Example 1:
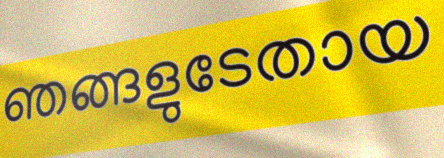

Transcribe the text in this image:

ഞങ്ങളുടേതായ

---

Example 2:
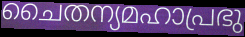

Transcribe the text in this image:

ചൈതന്യമഹാപ്രഭു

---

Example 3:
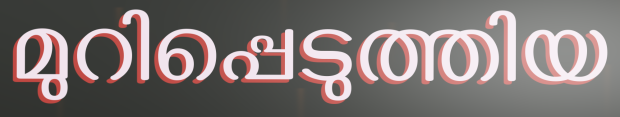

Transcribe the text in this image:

മുറിപ്പെടുത്തിയ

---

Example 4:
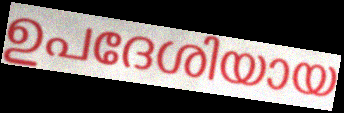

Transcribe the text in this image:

ഉപദേശിയായ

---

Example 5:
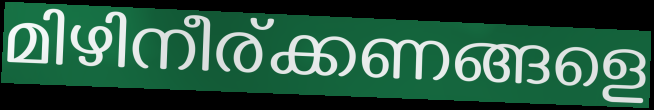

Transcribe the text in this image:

മിഴിനീര്ക്കണങ്ങളെ